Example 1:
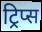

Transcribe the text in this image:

ट्रिप्स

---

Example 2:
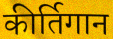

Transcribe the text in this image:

कीर्तिगान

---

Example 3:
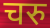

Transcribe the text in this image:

चरु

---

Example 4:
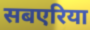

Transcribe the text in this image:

सबएरिया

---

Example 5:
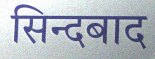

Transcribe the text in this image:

सिन्दबाद